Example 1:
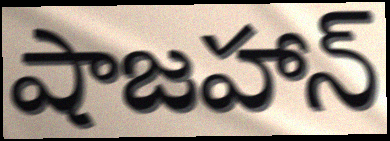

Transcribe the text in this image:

షాజహాన్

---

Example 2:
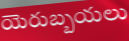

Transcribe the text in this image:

యెరుబ్బయలు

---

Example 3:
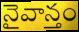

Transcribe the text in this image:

నైవాన్తం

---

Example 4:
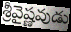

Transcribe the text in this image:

శ్రీవైష్ణవుడు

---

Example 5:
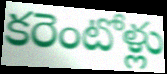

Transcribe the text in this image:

కరెంటోళ్లు